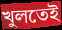
খুলতেই